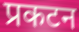
प्रकटन